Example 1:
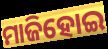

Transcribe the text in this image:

ମାଜିହୋଇ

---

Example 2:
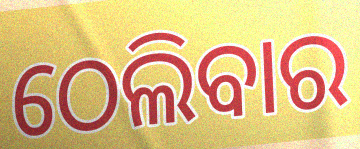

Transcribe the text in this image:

ଠେଲିବାର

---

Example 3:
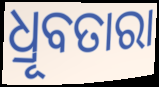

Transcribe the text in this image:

ଧ୍ରୂବତାରା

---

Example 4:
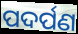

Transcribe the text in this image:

ପଦର୍ପଣ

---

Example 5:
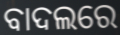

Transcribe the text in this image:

ବାଦଲରେ